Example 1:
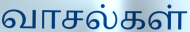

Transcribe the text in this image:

வாசல்கள்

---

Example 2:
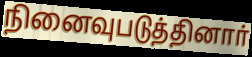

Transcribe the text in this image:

நினைவுபடுத்தினார்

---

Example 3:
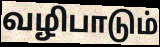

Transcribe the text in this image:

வழிபாடும்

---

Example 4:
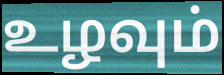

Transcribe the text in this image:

உழவும்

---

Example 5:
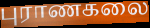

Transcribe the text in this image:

புராணகலை